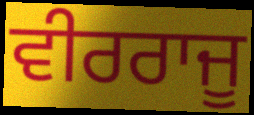
ਵੀਰਰਾਜੂ